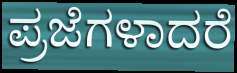
ಪ್ರಜೆಗಳಾದರೆ